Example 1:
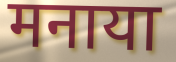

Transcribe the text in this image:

मनाया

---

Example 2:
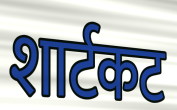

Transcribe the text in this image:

शार्टकट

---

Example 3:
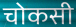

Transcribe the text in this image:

चोकसी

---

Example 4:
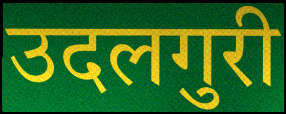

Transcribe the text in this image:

उदलगुरी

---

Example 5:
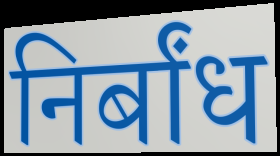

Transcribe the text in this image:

निर्बांध